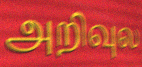
அறிவுல